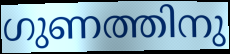
ഗുണത്തിനു